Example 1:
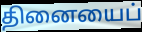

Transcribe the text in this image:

தினையைப்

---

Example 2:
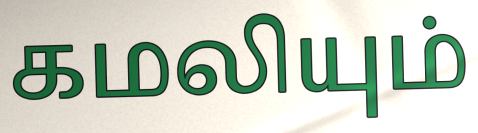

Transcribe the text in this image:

கமலியும்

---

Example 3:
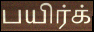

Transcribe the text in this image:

பயிர்க்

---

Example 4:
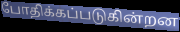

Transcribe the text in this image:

போதிக்கப்படுகின்றன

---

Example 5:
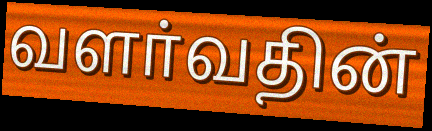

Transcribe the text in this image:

வளர்வதின்